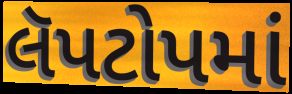
લૅપટોપમાં